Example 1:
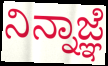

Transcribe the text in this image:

ನಿನ್ನಾಜ್ಞೆ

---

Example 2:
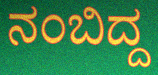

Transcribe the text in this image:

ನಂಬಿದ್ದ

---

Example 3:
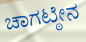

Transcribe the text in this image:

ಚಾಗಟ್ಠೇನ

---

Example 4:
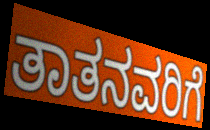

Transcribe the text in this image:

ತಾತನವರಿಗೆ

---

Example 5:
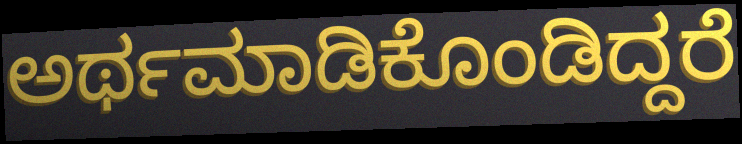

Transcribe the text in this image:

ಅರ್ಥಮಾಡಿಕೊಂಡಿದ್ದರೆ